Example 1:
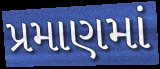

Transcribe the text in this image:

પ્રમાણમાં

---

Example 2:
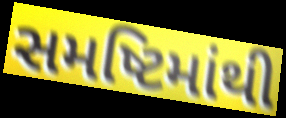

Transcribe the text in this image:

સમષ્ટિમાંથી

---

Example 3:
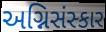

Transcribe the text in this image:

અગ્નિસંસ્કાર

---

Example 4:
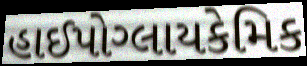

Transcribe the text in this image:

હાઈપોગ્લાયકેમિક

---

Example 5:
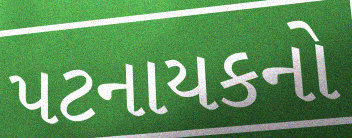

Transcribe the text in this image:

પટનાયકનો